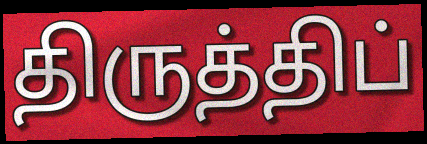
திருத்திப்